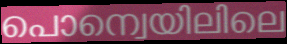
പൊന്വെയിലിലെ